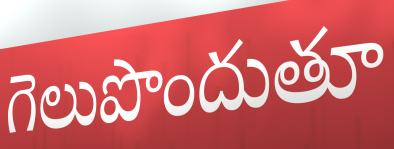
గెలుపొందుతూ